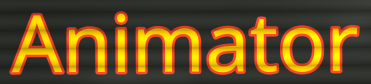
Animator